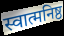
स्वात्मनिष्ठ